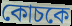
কোচকে